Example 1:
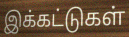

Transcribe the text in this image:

இக்கட்டுகள்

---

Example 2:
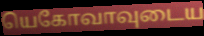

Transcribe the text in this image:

யெகோவாவுடைய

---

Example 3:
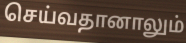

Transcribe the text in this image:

செய்வதானாலும்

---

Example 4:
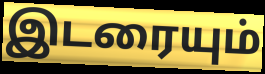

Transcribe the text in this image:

இடரையும்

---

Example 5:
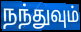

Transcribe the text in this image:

நந்துவும்